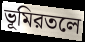
ভূমিরতলে